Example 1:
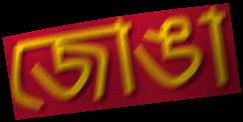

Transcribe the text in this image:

জোঙা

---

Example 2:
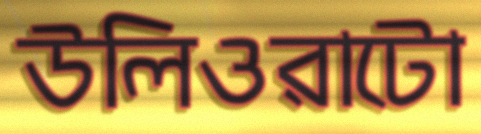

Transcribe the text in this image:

উলিওৱাটো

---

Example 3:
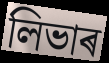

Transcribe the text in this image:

লিভাৰ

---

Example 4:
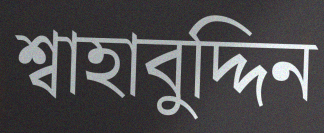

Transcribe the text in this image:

শ্বাহাবুদ্দিন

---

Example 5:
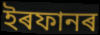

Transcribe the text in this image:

ইৰফানৰ